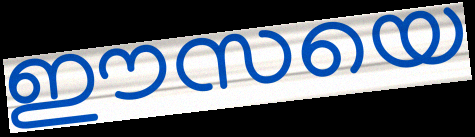
ഈസയെ